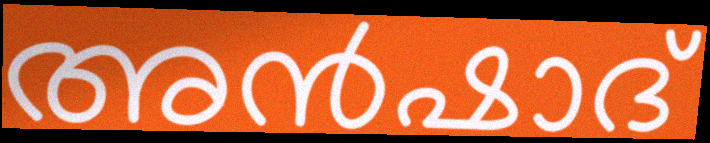
അൻഷാദ്